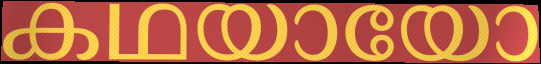
കഥയായോ